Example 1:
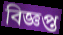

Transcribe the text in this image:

বিজ্ঞপ্ত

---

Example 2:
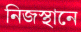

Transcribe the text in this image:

নিজস্থানে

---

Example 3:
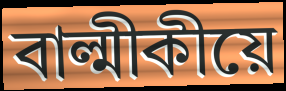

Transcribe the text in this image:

বাল্মীকীয়ে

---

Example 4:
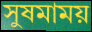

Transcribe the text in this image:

সুষমাময়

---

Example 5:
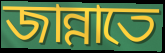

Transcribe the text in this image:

জান্নাতে